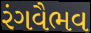
રંગવૈભવ